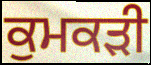
ਕੁਮਕੜੀ